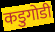
कडुगोडी